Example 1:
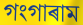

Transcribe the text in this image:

গংগাৰাম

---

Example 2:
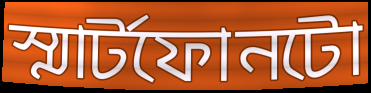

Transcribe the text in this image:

স্মাৰ্টফোনটো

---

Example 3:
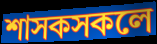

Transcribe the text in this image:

শাসকসকলে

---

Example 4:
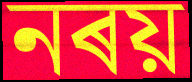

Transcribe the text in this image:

নৰয়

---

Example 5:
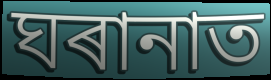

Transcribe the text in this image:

ঘৰানাত